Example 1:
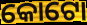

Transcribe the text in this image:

କୋଟୋ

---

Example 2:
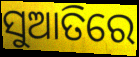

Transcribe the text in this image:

ସୁଆତିରେ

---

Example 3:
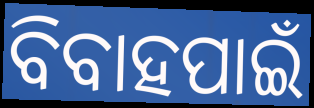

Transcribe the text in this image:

ବିବାହପାଇଁ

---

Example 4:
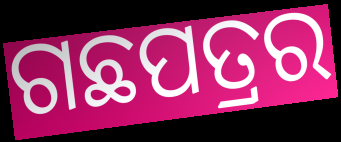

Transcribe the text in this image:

ଗଛପତ୍ରର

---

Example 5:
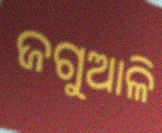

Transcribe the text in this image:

ଜଗୁଆଳି